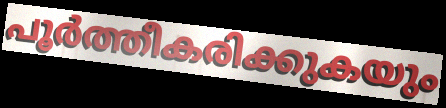
പൂർത്തീകരിക്കുകയും